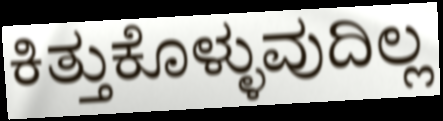
ಕಿತ್ತುಕೊಳ್ಳುವುದಿಲ್ಲ